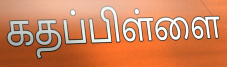
கதப்பிள்ளை